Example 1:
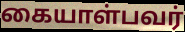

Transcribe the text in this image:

கையாள்பவர்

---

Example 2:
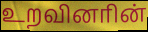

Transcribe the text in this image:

உறவினரின்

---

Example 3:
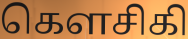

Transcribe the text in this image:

கௌசிகி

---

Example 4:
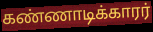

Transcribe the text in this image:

கண்ணாடிக்காரர்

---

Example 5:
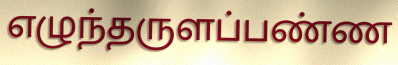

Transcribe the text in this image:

எழுந்தருளப்பண்ண